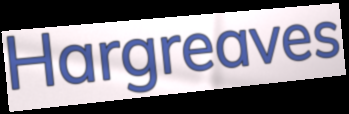
Hargreaves